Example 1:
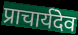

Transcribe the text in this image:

प्राचार्यदेव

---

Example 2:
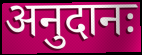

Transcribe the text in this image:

अनुदानः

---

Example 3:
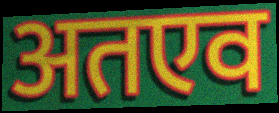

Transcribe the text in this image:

अतएव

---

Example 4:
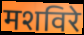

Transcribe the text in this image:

मशविरे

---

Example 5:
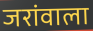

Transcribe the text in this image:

जरांवाला